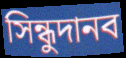
সিন্ধুদানব